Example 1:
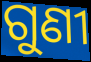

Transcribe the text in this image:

ଗୁଣୀ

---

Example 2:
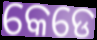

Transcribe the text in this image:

କେଡେ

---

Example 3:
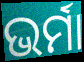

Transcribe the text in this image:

ଭର୍ମା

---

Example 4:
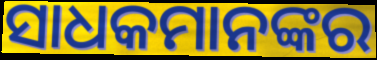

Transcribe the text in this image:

ସାଧକମାନଙ୍କର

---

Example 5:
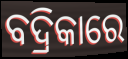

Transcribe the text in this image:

ବଦ୍ରିକାରେ